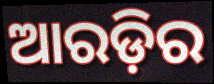
ଆରଡ଼ିର